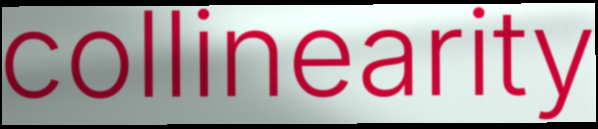
collinearity